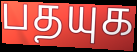
பதயுக